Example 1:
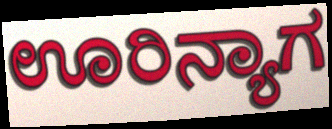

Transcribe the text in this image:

ಊರಿನ್ಯಾಗ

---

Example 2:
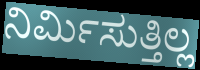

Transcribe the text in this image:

ನಿರ್ಮಿಸುತ್ತಿಲ್ಲ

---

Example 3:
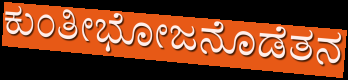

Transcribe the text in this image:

ಕುಂತೀಭೋಜನೊಡೆತನ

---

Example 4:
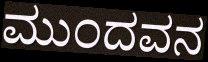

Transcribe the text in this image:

ಮುಂದವನ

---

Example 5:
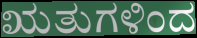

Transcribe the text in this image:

ಋತುಗಳಿಂದ